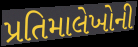
પ્રતિમાલેખોની